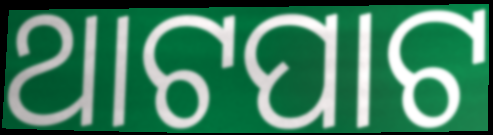
ଥାଟପାଟ